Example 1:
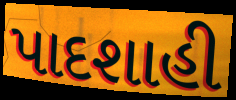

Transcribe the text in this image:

પાદશાહી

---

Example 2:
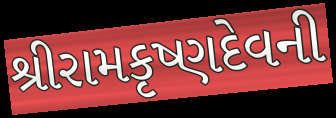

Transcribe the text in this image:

શ્રીરામકૃષ્ણદેવની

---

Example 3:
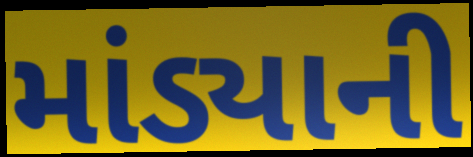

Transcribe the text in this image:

માંડ્યાની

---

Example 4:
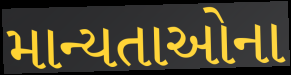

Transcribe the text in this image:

માન્યતાઓના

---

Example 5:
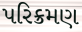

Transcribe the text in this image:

પરિક્રમણ